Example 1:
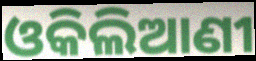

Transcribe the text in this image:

ଓକିଲିଆଣୀ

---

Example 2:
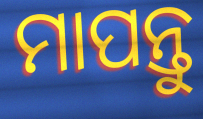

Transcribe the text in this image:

ମାପନ୍ତୁ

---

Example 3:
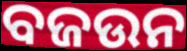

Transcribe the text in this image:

ବଜଉନ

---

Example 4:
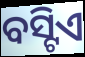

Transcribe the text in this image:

ବସ୍ଟିଏ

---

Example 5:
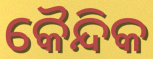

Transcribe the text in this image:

କୈନ୍ଦିକ